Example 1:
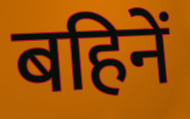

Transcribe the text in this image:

बहिनें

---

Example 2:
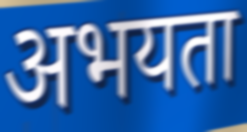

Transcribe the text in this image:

अभयता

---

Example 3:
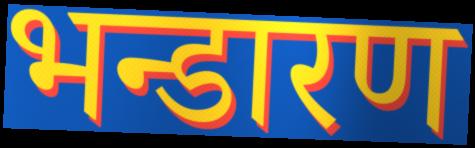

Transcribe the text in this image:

भन्डारण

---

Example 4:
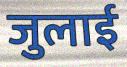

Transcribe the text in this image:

जुलाई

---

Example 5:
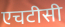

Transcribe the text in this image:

एचटीसी